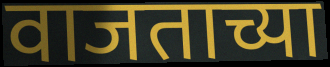
वाजताच्या